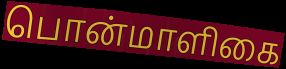
பொன்மாளிகை